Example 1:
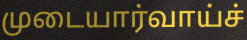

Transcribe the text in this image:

முடையார்வாய்ச்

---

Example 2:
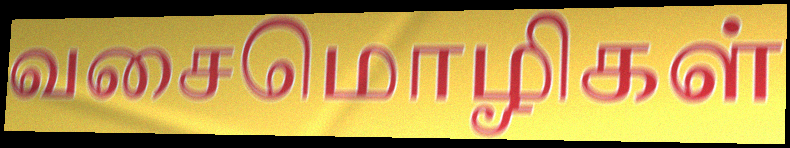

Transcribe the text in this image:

வசைமொழிகள்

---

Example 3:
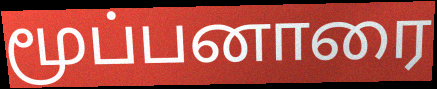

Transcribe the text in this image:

மூப்பனாரை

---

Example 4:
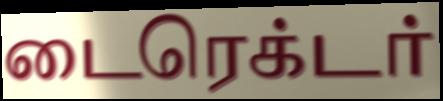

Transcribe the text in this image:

டைரெக்டர்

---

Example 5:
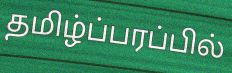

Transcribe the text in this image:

தமிழ்ப்பரப்பில்